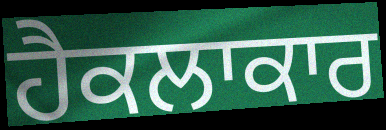
ਹੈਕਲਾਕਾਰ